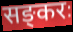
सङ्करः